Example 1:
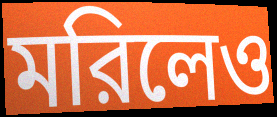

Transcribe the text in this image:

মরিলেও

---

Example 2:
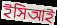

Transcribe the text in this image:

ইসিআই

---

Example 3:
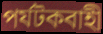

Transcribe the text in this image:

পর্যটকবাহী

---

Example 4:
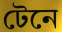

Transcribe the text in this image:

টেনে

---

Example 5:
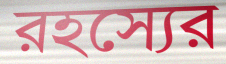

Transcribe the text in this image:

রহস্যের